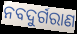
ନବଦୁର୍ଗରାଣ